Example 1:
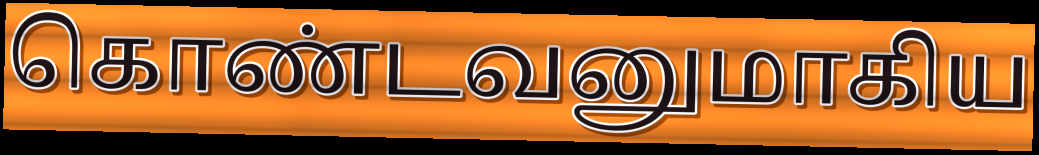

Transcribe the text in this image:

கொண்டவனுமாகிய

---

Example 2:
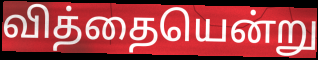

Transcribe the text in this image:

வித்தையென்று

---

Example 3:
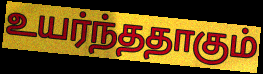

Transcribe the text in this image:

உயர்ந்ததாகும்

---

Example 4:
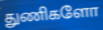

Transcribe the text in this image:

துணிகளோ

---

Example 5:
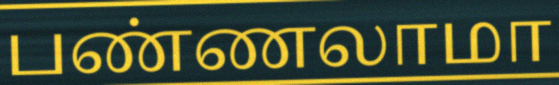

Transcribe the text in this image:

பண்ணலாமா